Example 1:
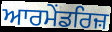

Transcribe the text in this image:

ਆਰਮੇਂਡਰਿਜ਼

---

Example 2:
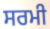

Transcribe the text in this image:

ਸਰਮੀ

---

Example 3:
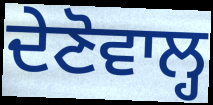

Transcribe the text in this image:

ਦੇਣੋਵਾਲ੍ਹ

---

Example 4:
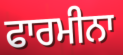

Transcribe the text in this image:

ਫਾਰਮੀਨਾ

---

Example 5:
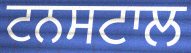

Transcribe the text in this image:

ਟਨਸਟਾਲ